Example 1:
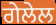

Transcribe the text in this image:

ਗੇਲੇਲ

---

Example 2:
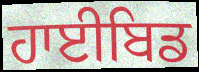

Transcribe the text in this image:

ਹਾਈਬਿਡ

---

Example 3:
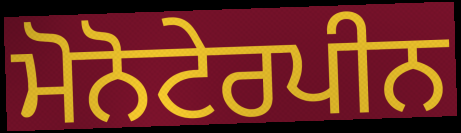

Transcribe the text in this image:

ਮੋਨੋਟੇਰਪੀਨ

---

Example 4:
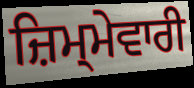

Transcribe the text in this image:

ਜ਼ਿਮ੍ਮੇਵਾਰੀ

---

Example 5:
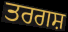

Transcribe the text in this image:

ਤਰਗਸ਼